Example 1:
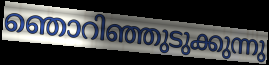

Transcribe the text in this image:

ഞൊറിഞ്ഞുടുക്കുന്നു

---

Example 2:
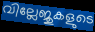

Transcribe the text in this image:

വില്ലേജുകളുടെ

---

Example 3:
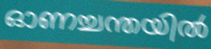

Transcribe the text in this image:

ഓണച്ചന്തയിൽ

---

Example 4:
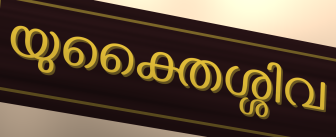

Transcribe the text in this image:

യുക്തൈശ്ശിവ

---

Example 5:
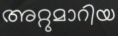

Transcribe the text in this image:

അറ്റുമാറിയ